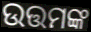
ଉତ୍ତମଙ୍କ